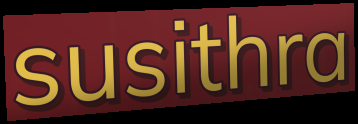
susithra